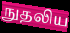
நுதலிய